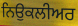
ਨਿਉਕਲੀਅਰ